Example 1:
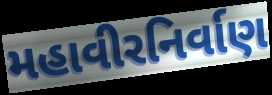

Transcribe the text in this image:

મહાવીરનિર્વાણ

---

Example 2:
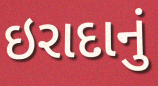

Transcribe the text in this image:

ઇરાદાનું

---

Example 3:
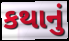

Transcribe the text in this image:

કથાનું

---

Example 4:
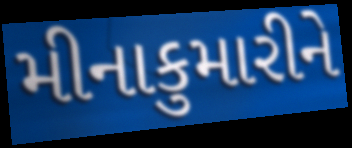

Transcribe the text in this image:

મીનાકુમારીને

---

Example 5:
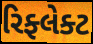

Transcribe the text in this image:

રિફ્લેક્ટ